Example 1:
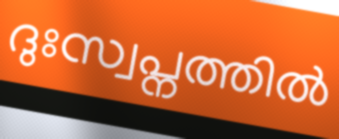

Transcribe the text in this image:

ദുഃസ്വപ്നത്തിൽ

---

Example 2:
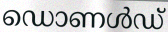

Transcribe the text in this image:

ഡൊണൾഡ്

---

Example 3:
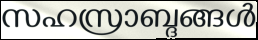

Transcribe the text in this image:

സഹസ്രാബ്ദങ്ങൾ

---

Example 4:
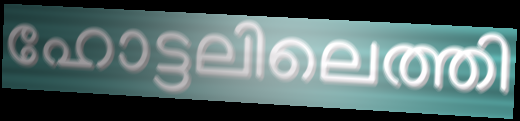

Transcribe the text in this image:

ഹോട്ടലിലെത്തി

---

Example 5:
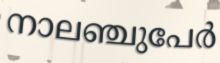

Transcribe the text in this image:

നാലഞ്ചുപേർ